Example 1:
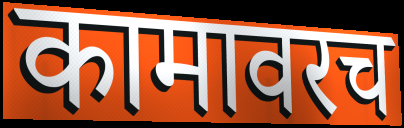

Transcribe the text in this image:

कामावरच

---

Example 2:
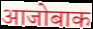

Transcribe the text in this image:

आजोबाक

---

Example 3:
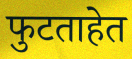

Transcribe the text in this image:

फुटताहेत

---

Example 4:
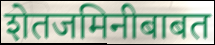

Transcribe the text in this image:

शेतजमिनीबाबत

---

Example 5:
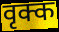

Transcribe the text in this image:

वृक्क